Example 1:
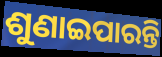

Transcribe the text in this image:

ଶୁଣାଇପାରନ୍ତି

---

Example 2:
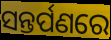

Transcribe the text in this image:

ସନ୍ତର୍ପଣରେ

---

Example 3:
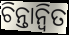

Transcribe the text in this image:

ଚିନ୍ତାନ୍ୱିତ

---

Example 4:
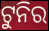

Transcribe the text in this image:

ଟୁନିର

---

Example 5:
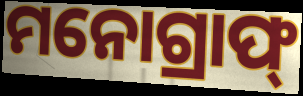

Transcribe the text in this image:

ମନୋଗ୍ରାଫ୍